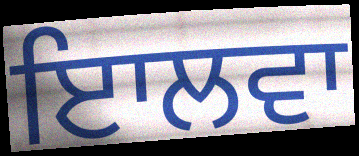
ਇਾਲਵਾ